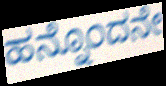
ಹನ್ನೊಂದನೇ